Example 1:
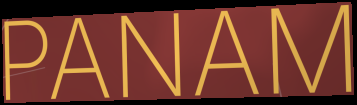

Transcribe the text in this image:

PANAM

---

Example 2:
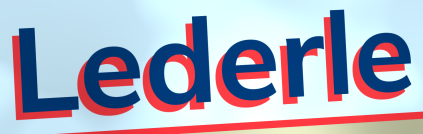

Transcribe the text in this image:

Lederle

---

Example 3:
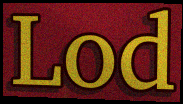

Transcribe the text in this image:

Lod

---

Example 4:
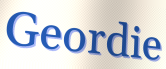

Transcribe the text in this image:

Geordie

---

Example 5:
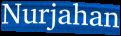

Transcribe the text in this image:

Nurjahan